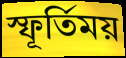
স্ফূর্তিময়